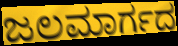
ಜಲಮಾರ್ಗದ